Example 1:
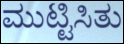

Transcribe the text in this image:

ಮುಟ್ಟಿಸಿತು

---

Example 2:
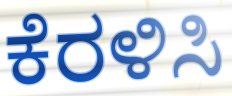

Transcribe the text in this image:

ಕೆರಳಿಸಿ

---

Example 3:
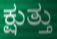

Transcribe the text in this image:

ಕ್ಷುತ್ತು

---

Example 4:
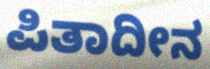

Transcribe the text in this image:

ಪಿತಾದೀನ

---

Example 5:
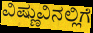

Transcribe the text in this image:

ವಿಷ್ಣುವಿನಲ್ಲಿಗೆ